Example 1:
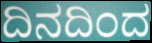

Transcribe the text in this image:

ದಿನದಿಂದ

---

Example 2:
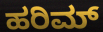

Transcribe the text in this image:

ಹರಿಮ್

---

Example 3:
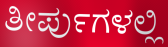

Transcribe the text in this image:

ತೀರ್ಪುಗಳಲ್ಲಿ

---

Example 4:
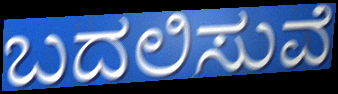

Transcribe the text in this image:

ಬದಲಿಸುವೆ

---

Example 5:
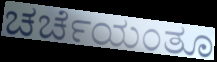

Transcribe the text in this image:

ಚರ್ಚೆಯಂತೂ